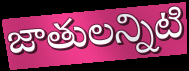
జాతులన్నిటి